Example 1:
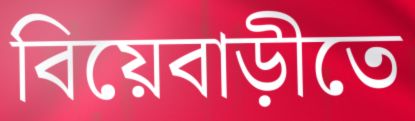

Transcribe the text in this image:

বিয়েবাড়ীতে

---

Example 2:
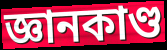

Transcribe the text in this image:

জ্ঞানকাণ্ড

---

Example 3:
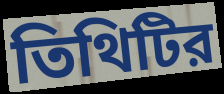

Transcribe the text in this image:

তিথিটির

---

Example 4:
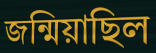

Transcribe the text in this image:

জন্মিয়াছিল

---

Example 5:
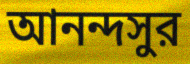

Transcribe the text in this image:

আনন্দসুর